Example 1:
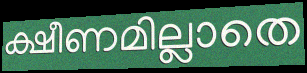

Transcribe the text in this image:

ക്ഷീണമില്ലാതെ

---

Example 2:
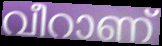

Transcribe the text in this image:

വീറാണ്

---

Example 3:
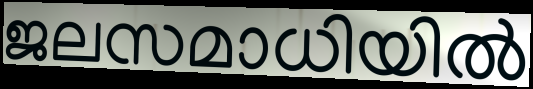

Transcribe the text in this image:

ജലസമാധിയിൽ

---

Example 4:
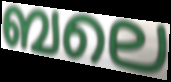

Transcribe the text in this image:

ബലെ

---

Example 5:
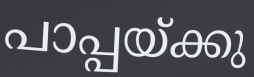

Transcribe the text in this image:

പാപ്പയ്ക്കു